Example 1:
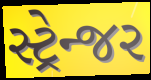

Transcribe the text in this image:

સ્ટ્રેન્જર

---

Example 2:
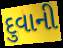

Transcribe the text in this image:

દુવાની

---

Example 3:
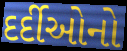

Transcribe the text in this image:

દર્દીઓનો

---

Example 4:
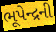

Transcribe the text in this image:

ભૂપેન્દ્રની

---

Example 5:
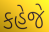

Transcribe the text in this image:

કહેજે